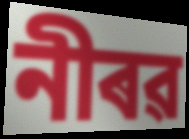
নীৰৱ